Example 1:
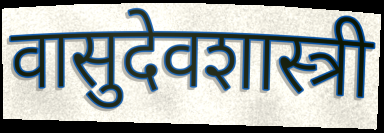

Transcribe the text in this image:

वासुदेवशास्त्री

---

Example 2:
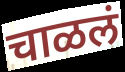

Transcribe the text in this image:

चाळलं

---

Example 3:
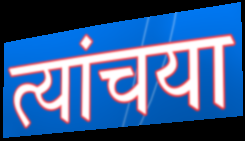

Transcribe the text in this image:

त्यांचया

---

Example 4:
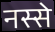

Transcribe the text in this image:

नस्से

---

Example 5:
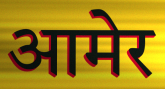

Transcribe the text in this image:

आमेर